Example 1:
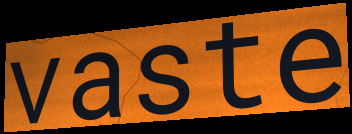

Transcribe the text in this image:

vaste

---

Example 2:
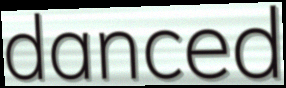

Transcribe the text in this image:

danced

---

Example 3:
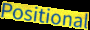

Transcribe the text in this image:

Positional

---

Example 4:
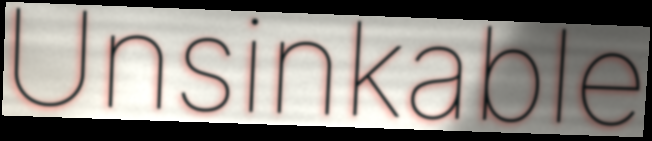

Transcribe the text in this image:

Unsinkable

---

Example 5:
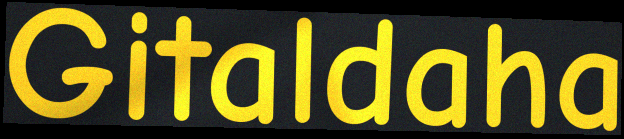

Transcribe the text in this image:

Gitaldaha